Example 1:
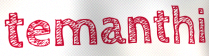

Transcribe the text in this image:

temanthi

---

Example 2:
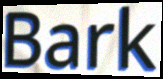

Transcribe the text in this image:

Bark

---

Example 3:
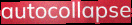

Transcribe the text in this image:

autocollapse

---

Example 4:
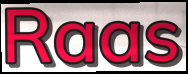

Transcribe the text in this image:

Raas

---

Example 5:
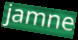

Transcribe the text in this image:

jamne